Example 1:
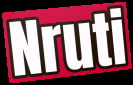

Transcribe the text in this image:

Nruti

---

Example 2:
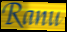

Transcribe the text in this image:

Ranu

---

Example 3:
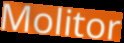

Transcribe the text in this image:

Molitor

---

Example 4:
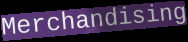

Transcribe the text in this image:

Merchandising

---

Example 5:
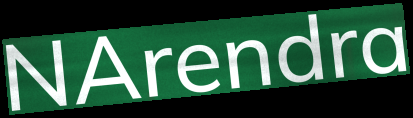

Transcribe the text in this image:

NArendra